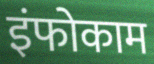
इंफोकाम